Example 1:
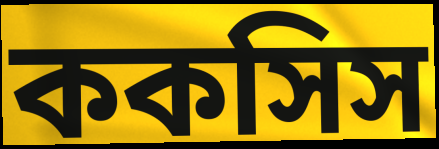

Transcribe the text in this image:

ককসিস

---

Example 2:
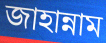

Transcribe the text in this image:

জাহান্নাম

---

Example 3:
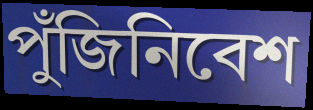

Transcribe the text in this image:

পুঁজিনিবেশ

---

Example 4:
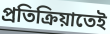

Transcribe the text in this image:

প্রতিক্রিয়াতেই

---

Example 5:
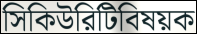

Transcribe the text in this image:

সিকিউরিটিবিষয়ক